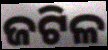
ଜଟିଳ